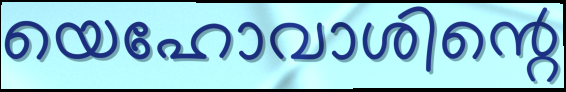
യെഹോവാശിന്റെ